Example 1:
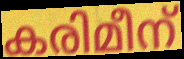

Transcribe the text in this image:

കരിമീന്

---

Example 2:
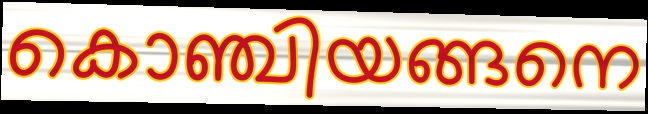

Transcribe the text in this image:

കൊഞ്ചിയങ്ങനെ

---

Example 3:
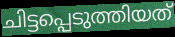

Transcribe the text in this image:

ചിട്ടപ്പെടുത്തിയത്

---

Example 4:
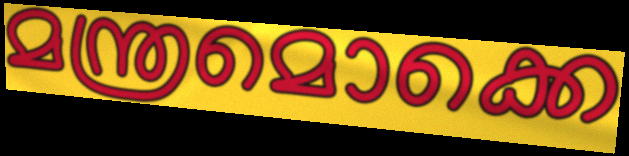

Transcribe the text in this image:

മന്ത്രമൊക്കെ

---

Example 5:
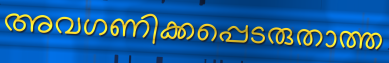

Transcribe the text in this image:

അവഗണിക്കപ്പെടരുതാത്ത